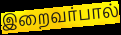
இறைவர்பால்